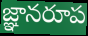
జ్ఞానరూప